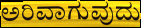
ಅರಿವಾಗುವುದು